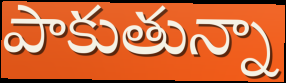
పాకుతున్నా